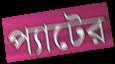
প্যাটের